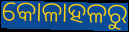
କୋଳାହଳରୁ